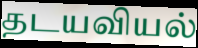
தடயவியல்